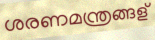
ശരണമന്ത്രങ്ങള്